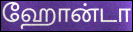
ஹோன்டா